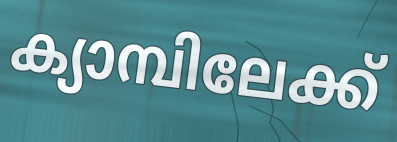
ക്യാമ്പിലേക്ക്